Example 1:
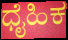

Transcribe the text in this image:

ಧೈಹಿಕ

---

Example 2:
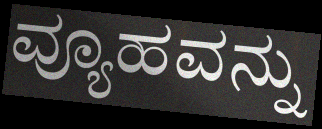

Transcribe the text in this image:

ವ್ಯೂಹವನ್ನು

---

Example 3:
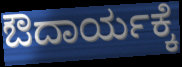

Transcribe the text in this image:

ಔದಾರ್ಯಕ್ಕೆ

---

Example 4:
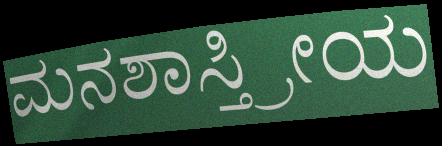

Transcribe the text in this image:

ಮನಶಾಸ್ತ್ರೀಯ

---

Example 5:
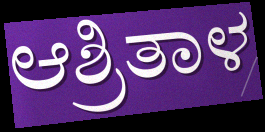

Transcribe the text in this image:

ಆಶ್ರಿತಾಳ